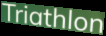
Triathlon